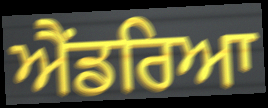
ਐਂਡਰਿਆ